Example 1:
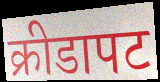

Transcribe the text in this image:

क्रीडापट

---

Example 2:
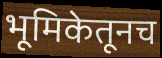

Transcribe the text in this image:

भूमिकेतूनच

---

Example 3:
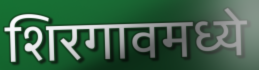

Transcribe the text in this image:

शिरगावमध्ये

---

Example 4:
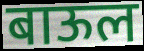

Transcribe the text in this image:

बाऊल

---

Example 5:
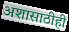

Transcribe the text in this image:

अशासाठीही